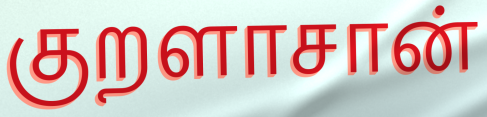
குறளாசான்